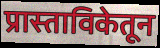
प्रास्ताविकेतून